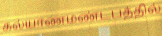
கல்யாணமண்டபத்தில்